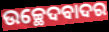
ଉଚ୍ଛେଦବାଦର